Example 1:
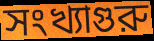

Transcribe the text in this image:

সংখ্যাগুরু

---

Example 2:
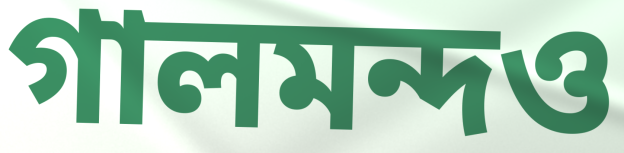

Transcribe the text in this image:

গালমন্দও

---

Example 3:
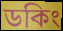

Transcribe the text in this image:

ডকিং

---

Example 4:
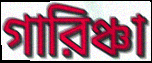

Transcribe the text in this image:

গারিঞ্চা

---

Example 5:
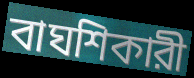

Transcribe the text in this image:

বাঘশিকারী